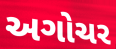
અગોચર